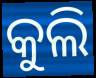
କୁଲି